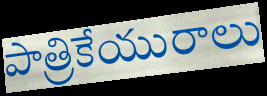
పాత్రికేయురాలు